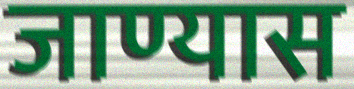
जाण्यास